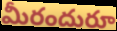
మీరందురూ